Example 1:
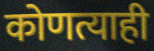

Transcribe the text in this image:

कोणत्याही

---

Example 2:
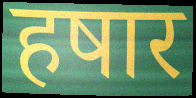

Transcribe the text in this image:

हषार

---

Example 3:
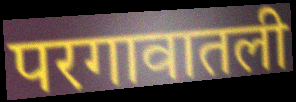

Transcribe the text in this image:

परगावातली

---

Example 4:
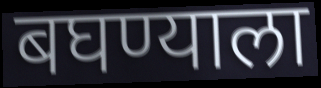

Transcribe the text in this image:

बघण्याला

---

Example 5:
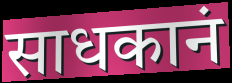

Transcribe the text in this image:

साधकानं